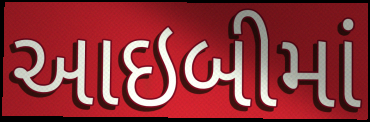
આઇબીમાં